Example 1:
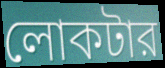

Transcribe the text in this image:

লোকটার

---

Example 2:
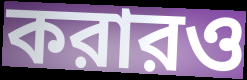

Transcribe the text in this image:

করারও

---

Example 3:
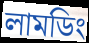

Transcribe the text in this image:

লামডিং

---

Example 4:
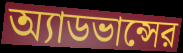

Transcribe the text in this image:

অ্যাডভান্সের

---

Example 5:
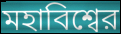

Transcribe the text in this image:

মহাবিশ্বের